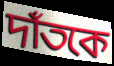
দাঁতকে